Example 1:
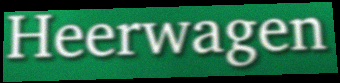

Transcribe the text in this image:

Heerwagen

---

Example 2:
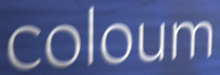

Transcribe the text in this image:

coloum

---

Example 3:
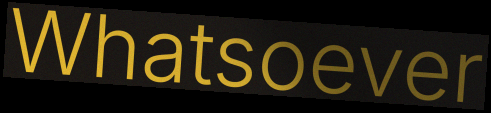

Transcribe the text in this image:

Whatsoever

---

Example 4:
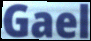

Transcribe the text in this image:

Gael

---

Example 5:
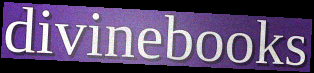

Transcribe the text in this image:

divinebooks